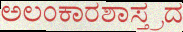
ಅಲಂಕಾರಶಾಸ್ತ್ರದ